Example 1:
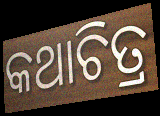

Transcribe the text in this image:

କଥାଚିତ୍ର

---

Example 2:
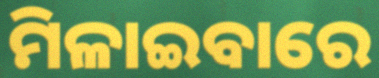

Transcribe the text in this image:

ମିଳାଇବାରେ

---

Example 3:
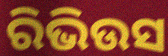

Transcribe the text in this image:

ରିଭିଉସ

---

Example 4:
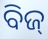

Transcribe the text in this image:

ବିଜ୍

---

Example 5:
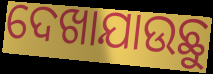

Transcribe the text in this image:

ଦେଖାଯାଉଛୁ